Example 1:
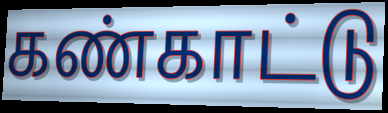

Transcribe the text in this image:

கண்காட்டு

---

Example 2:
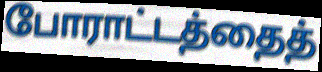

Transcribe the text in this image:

போராட்டத்தைத்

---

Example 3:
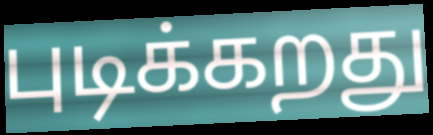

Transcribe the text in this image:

புடிக்கறது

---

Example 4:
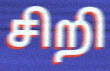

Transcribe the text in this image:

சிறி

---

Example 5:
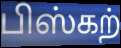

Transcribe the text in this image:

பிஸ்கற்